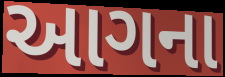
આગના